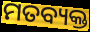
ମତବ୍ୟକ୍ତ